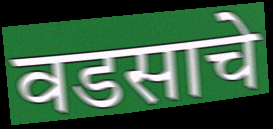
वडसाचे